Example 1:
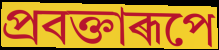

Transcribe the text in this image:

প্ৰবক্তাৰূপে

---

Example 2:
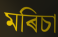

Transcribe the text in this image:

মৰিচা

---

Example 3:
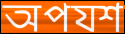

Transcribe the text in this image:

অপযশ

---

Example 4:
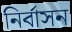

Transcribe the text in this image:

নিৰ্বাসন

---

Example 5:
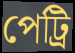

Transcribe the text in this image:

পেট্ৰি